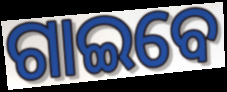
ଗାଇବେ